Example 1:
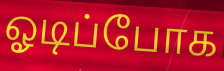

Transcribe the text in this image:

ஓடிப்போக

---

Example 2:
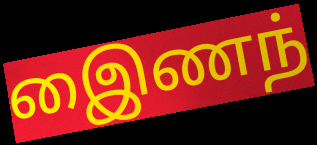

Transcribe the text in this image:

இைணந்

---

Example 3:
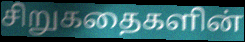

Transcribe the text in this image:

சிறுகதைகளின்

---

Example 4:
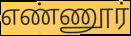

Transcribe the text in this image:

எண்ணூர்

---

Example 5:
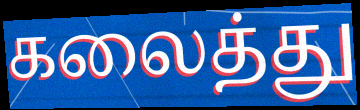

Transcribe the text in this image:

கலைத்து